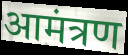
आमंत्रण